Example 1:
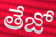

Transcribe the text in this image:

తేజో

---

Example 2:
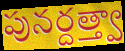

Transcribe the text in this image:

పునర్దత్త్వా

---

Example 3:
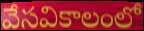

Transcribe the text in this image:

వేసవికాలంలో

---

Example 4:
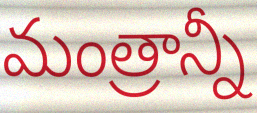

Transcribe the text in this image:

మంత్రాన్నీ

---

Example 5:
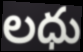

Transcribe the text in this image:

లధు